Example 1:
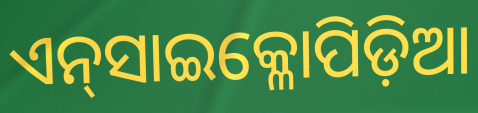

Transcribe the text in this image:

ଏନ୍‌ସାଇକ୍ଳୋପିଡ଼ିଆ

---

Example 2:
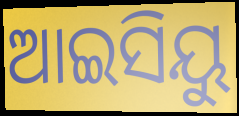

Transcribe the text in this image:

ଆଇସିୟୁ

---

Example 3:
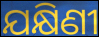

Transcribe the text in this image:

ଯକ୍ଷିଣୀ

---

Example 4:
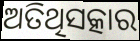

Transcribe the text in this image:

ଅତିଥିସତ୍କାର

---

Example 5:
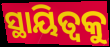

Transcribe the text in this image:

ସ୍ଥାୟିତ୍ୱକୁ